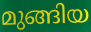
മുങ്ങിയ